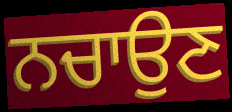
ਨਚਾਉਣ